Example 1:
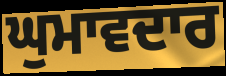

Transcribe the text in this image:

ਘੁਮਾਵਦਾਰ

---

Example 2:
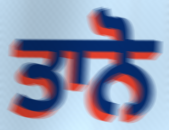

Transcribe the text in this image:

ਤਾਨੋ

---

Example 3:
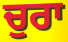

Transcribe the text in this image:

ਚੁਰਾ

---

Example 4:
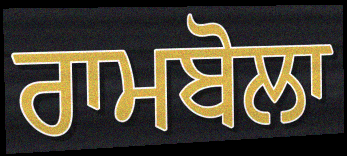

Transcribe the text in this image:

ਰਾਮਬੋਲਾ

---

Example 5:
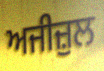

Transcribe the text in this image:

ਅਜੀਜ਼ੁਲ